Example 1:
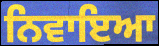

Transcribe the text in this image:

ਨਿਵਾਇਆ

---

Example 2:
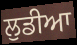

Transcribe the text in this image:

ਲੁਡੀਆ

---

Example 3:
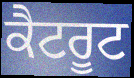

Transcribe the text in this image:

ਕੈਟਰੂਟ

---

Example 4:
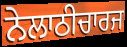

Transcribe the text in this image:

ਨੇਲਾਠੀਚਾਰਜ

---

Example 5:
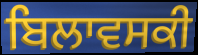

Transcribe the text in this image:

ਬਿਲਾਵਸਕੀ